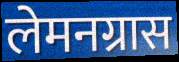
लेमनग्रास